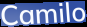
Camilo